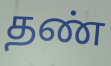
தண்